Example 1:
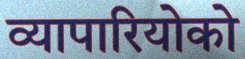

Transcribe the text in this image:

व्यापारियोको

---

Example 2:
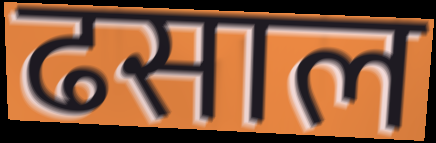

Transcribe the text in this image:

ढसाल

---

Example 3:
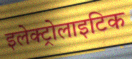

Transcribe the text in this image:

इलेक्ट्रोलाइटिक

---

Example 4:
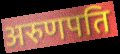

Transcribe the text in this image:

अरुणपति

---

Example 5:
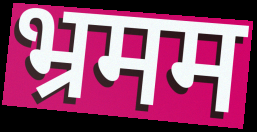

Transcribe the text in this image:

भ्रमम